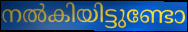
നൽകിയിട്ടുണ്ടോ